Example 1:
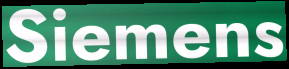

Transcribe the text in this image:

Siemens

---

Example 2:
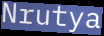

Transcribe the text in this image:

Nrutya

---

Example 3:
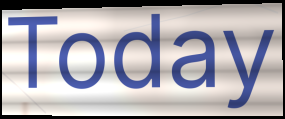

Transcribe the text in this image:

Today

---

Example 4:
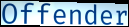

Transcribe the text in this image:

Offender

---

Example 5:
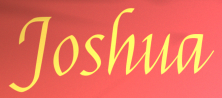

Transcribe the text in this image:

Joshua